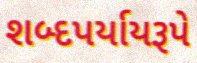
શબ્દપર્યાયરૂપે